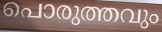
പൊരുത്തവും